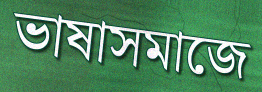
ভাষাসমাজে